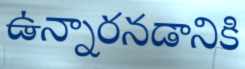
ఉన్నారనడానికి